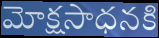
మోక్షసాధనకి